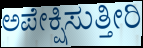
ಅಪೇಕ್ಷಿಸುತ್ತೀರಿ